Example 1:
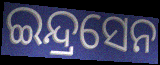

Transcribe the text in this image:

ଇନ୍ଦ୍ରସେନ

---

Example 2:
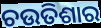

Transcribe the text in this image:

ଚଉତିଶାର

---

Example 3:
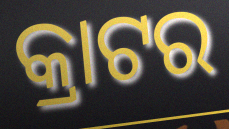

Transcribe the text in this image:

କ୍ରାଟର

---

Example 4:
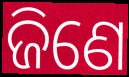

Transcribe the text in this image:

ଜିଣେ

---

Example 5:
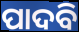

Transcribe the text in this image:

ପାଦବି